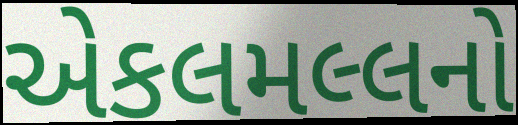
એકલમલ્લનો